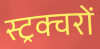
स्ट्रक्चरों